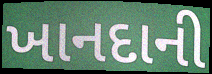
ખાનદાની